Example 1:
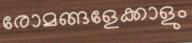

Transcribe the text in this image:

രോമങ്ങളേക്കാളും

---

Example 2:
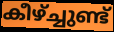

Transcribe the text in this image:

കീഴ്ച്ചുണ്ട്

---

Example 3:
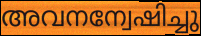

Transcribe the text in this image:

അവനന്വേഷിച്ചു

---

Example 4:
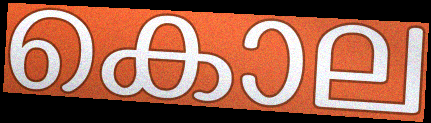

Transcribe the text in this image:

കൊല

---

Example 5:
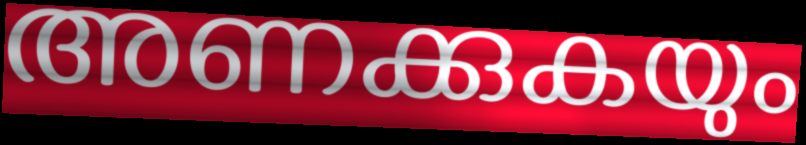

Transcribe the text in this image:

അണക്കുകയും